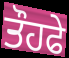
ਤੌਹਫੇ